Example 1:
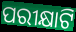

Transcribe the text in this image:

ପରୀକ୍ଷାଟି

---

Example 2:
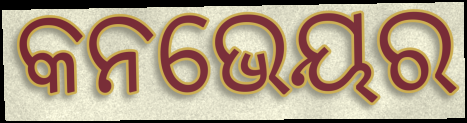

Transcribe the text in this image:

କନଭେୟର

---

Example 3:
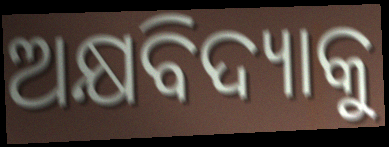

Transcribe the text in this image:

ଅକ୍ଷବିଦ୍ୟାକୁ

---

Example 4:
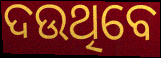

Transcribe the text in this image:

ଦଉଥିବେ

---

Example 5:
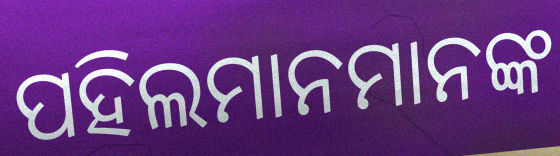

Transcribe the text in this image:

ପହିଲମାନମାନଙ୍କ